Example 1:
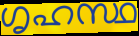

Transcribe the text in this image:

ഗൃഹസ്ഥ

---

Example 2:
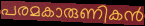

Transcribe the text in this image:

പരമകാരുണികൻ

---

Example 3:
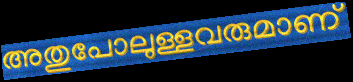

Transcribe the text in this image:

അതുപോലുള്ളവരുമാണ്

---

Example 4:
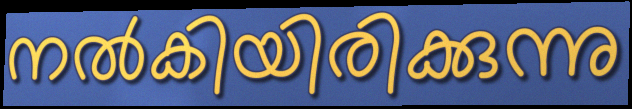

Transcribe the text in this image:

നൽകിയിരിക്കുന്നു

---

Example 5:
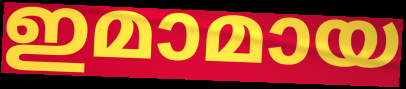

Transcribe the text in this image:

ഇമാമായ